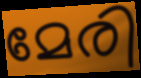
മേരി